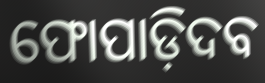
ଫୋପାଡ଼ିଦବ